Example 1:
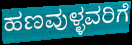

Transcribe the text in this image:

ಹಣವುಳ್ಳವರಿಗೆ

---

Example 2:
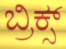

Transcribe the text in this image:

ಬ್ರಿಕ್ಸ್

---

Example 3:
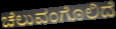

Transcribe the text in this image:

ಚೆಲುವಂಗೊಲಿದೆ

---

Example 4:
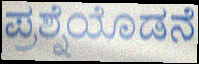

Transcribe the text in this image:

ಪ್ರಶ್ನೆಯೊಡನೆ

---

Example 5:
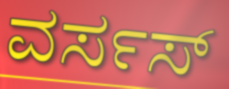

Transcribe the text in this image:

ವರ್ಸಸ್